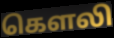
கௌலி